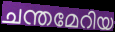
ചന്തമേറിയ